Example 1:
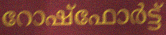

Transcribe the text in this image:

റോഷ്ഫോർട്ട്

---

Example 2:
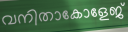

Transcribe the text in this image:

വനിതാകോളേജ്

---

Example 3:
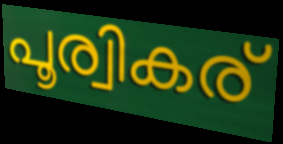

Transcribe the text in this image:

പൂര്വികര്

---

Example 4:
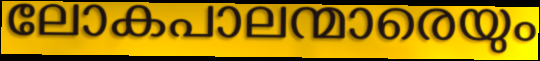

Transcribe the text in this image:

ലോകപാലന്മാരെയും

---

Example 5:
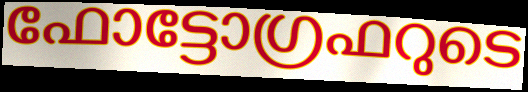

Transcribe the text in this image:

ഫോട്ടോഗ്രഫറുടെ